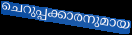
ചെറുപ്പക്കാരനുമായ